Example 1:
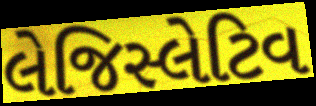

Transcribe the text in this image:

લેજિસ્લેટિવ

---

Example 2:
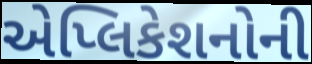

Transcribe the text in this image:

એપ્લિકેશનોની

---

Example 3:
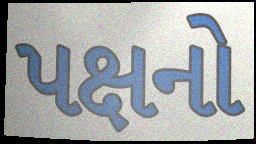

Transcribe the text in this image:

પક્ષનો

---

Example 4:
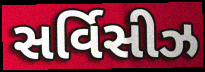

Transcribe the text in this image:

સર્વિસીઝ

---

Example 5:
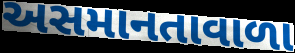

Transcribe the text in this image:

અસમાનતાવાળા